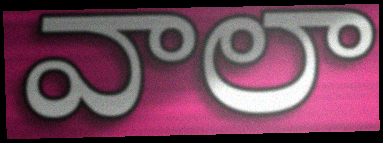
వాలా